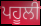
ਪਹੂਲੀ